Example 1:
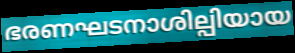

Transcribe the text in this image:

ഭരണഘടനാശില്പിയായ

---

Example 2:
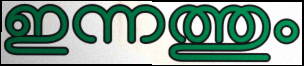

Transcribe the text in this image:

ഇന്നത്തും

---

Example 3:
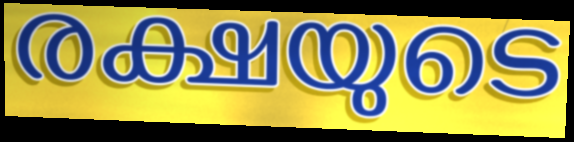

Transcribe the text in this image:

രക്ഷയുടെ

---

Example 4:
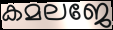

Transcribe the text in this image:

കമലജേ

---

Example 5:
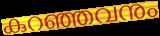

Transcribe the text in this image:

കുറഞ്ഞവനും